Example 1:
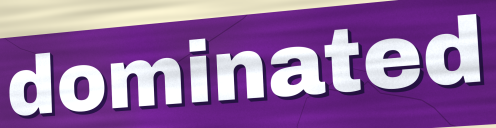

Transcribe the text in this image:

dominated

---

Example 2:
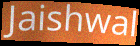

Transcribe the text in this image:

Jaishwal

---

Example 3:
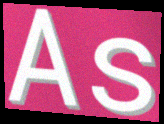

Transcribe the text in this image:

As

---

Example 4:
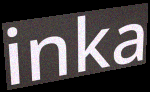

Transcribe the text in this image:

inka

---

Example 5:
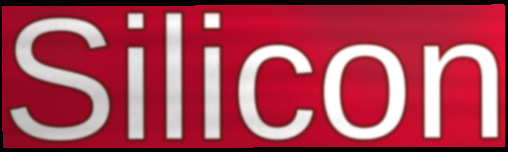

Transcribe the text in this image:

Silicon